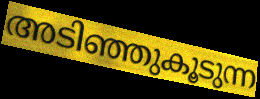
അടിഞ്ഞുകൂടുന്ന